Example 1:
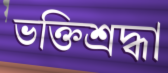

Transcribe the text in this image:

ভক্তিশ্রদ্ধা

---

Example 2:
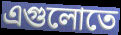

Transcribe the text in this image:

এগুলোতে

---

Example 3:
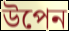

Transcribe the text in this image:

উপেন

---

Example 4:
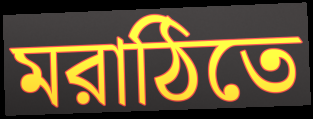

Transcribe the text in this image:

মরাঠিতে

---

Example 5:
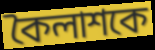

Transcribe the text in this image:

কৈলাশকে